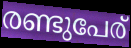
രണ്ടുപേര്